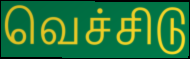
வெச்சிடு